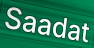
Saadat